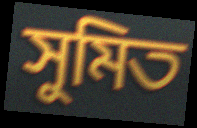
সুমিত